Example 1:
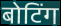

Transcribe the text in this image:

बोटिंग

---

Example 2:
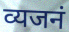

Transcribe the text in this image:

व्यजनं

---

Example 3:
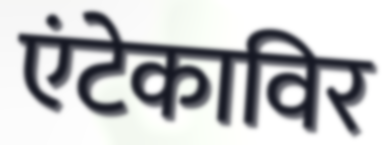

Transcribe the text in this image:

एंटेकाविर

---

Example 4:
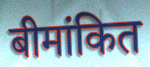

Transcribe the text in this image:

बीमांकित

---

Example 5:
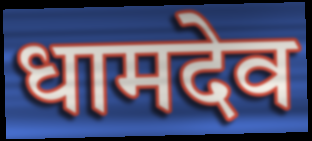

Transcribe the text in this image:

धामदेव